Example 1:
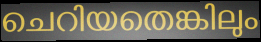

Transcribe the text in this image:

ചെറിയതെങ്കിലും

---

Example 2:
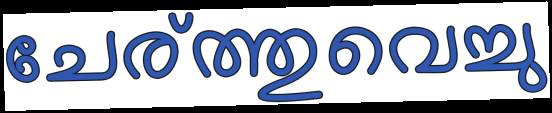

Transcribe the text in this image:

ചേര്ത്തുവെച്ചു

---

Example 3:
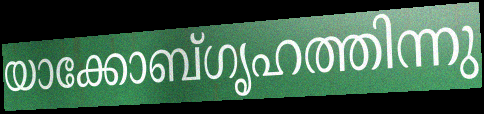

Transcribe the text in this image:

യാക്കോബ്ഗൃഹത്തിന്നു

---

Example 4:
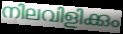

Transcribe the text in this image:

നിലവിളിക്കും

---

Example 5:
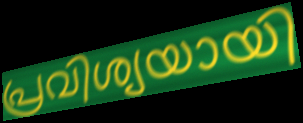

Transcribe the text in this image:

പ്രവിശ്യയായി